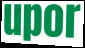
upor